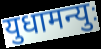
युधामन्युः